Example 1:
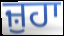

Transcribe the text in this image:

ਜ਼ੁਹਾ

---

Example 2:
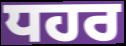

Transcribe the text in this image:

ਧਹਰ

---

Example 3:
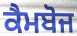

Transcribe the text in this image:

ਕੈਮਬੋਜ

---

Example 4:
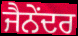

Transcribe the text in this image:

ਜੈਨੇਂਦਰ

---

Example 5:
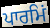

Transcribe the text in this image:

ਪਾਰਮਿਂ